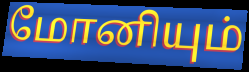
மோனியும்